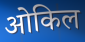
ओकिल